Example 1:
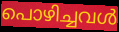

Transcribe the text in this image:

പൊഴിച്ചവൾ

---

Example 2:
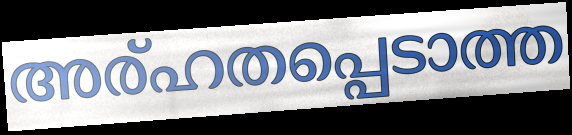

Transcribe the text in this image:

അര്ഹതപ്പെടാത്ത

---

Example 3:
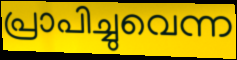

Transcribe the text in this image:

പ്രാപിച്ചുവെന്ന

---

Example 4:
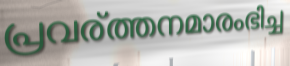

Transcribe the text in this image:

പ്രവര്ത്തനമാരംഭിച്ച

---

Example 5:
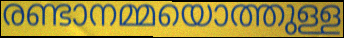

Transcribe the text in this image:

രണ്ടാനമ്മയൊത്തുള്ള